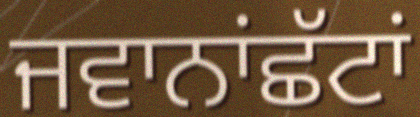
ਜਵਾਨਾਂਛੱਟਾਂ